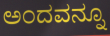
ಅಂದವನ್ನೂ